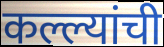
कल्ल्यांची